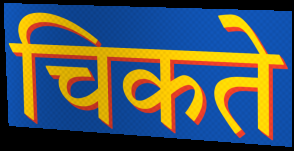
चिकते